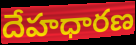
దేహధారణ